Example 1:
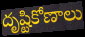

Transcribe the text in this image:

దృష్టికోణాలు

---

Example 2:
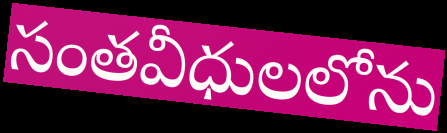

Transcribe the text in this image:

సంతవీధులలోను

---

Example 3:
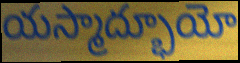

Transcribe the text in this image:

యస్మాద్భూయో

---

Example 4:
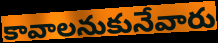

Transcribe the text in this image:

కావాలనుకునేవారు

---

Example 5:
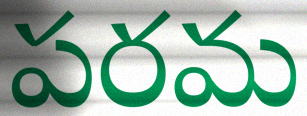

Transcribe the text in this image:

పరమ